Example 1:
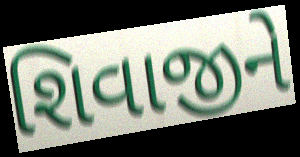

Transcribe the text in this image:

શિવાજીને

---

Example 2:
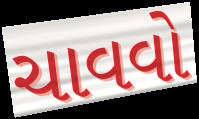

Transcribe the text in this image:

ચાવવો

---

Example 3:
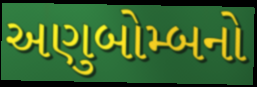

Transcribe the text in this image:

અણુબોમ્બનો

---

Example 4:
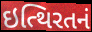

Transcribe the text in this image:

ઇત્થિરતનં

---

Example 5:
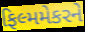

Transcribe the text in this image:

ફિલ્મમેકરને